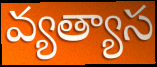
వ్యత్యాస